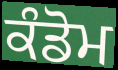
ਕੰਡੋਮ